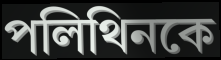
পলিথিনকে